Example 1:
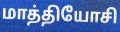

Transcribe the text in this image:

மாத்தியோசி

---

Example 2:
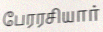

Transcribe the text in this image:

பேரரசியார்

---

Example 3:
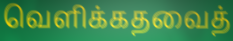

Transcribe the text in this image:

வெளிக்கதவைத்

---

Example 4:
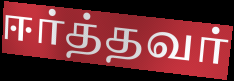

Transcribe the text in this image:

ஈர்த்தவர்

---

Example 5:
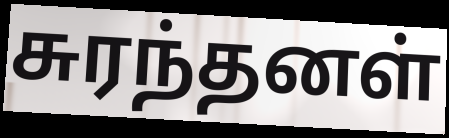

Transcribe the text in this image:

சுரந்தனள்